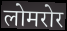
लोमरोर